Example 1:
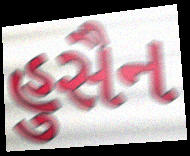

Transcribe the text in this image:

હુસૈન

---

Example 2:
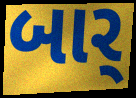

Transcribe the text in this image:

બાર્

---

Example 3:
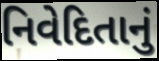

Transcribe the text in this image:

નિવેદિતાનું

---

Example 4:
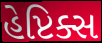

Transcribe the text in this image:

હેપ્ટિક્સ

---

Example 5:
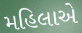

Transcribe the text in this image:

મહિલાએ